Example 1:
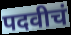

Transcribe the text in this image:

पदवीचं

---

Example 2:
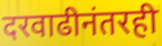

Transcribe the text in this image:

दरवाढीनंतरही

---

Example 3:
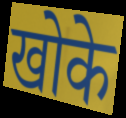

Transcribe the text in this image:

खोके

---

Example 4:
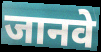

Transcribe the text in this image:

जानवे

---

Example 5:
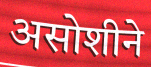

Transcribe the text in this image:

असोशीने